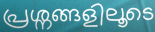
പ്രശ്നങ്ങളിലൂടെ